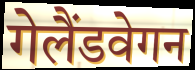
गेलैंडवेगन